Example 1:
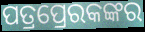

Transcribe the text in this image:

ପତ୍ରପ୍ରେରକଙ୍କର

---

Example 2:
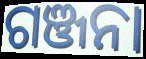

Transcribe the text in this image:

ଗଞ୍ଜନା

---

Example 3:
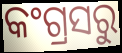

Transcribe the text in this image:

କଂଗ୍ରସରୁ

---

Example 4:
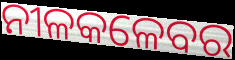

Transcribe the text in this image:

ନୀଳକଳେବର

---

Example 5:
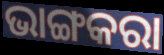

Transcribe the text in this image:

ଭାଙ୍ଗକରା